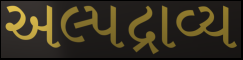
અલ્પદ્રાવ્ય